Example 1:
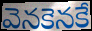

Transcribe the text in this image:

వెనకెనకే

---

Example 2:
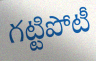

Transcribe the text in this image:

గట్టిపోటీ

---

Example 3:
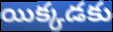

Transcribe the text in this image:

యిక్కడకు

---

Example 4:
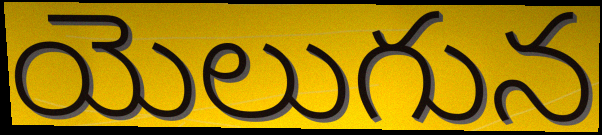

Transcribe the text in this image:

యెలుగున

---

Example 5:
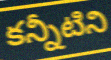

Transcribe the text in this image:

కన్నీటిని